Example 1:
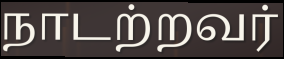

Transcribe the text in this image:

நாடற்றவர்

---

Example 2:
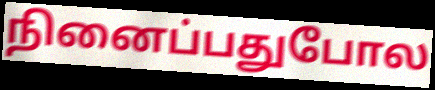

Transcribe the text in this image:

நினைப்பதுபோல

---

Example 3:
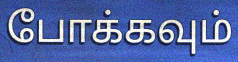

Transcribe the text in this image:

போக்கவும்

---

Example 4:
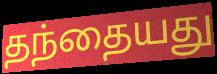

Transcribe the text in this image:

தந்தையது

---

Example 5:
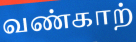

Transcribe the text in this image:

வண்காற்